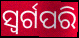
ସ୍ୱର୍ଗପରି